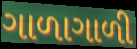
ગાળાગાળી